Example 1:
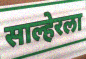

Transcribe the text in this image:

साल्हेरला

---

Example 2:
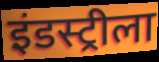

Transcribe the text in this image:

इंडस्ट्रीला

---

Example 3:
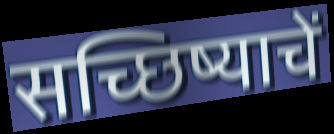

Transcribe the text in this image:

सच्छिष्याचें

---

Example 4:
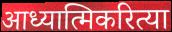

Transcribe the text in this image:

आध्यात्मिकरित्या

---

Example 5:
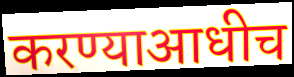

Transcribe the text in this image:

करण्याआधीच